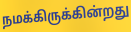
நமக்கிருக்கின்றது